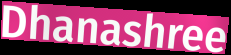
Dhanashree